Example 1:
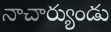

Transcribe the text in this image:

నాచార్యుండు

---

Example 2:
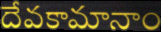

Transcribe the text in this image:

దేవకామానాం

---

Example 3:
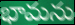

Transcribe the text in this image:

భామను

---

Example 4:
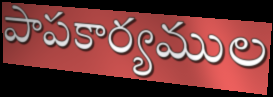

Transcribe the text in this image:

పాపకార్యముల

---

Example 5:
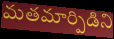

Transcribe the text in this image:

మతమార్పిడిని